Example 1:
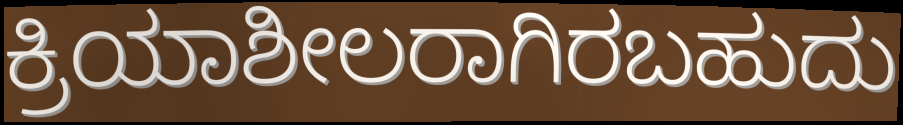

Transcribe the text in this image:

ಕ್ರಿಯಾಶೀಲರಾಗಿರಬಹುದು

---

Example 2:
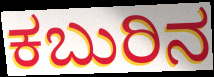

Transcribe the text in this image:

ಕಬುರಿನ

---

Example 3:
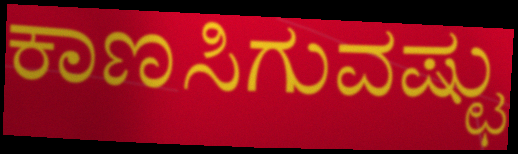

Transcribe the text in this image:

ಕಾಣಸಿಗುವಷ್ಟು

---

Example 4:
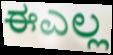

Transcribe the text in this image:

ಈಎಲ್ಲ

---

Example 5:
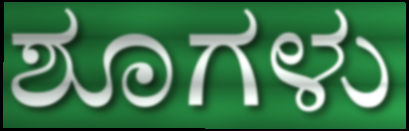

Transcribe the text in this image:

ಶೂಗಳು